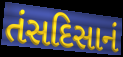
તંસદિસાનં